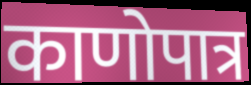
काणोपात्र